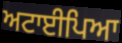
ਅਟਾਈਪਿਆ